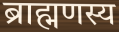
ब्राह्मणस्य